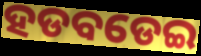
ହଡବଡେଇ